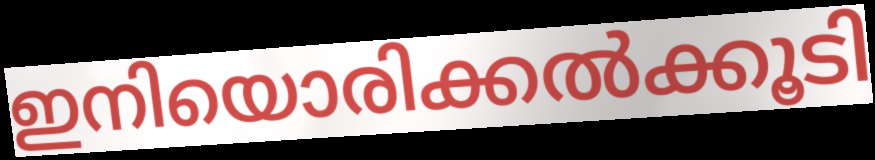
ഇനിയൊരിക്കൽക്കൂടി